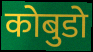
कोबुडो